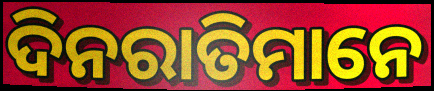
ଦିନରାତିମାନେ